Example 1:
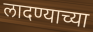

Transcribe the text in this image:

लादण्याच्या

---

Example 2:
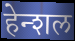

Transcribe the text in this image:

हेन्शल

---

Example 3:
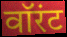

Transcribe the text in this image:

वॉरंट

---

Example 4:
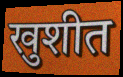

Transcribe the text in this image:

खुशीत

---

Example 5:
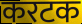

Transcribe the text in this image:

करटक